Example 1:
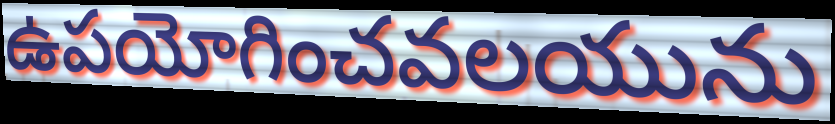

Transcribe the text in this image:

ఉపయోగించవలయును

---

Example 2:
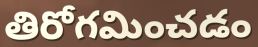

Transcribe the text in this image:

తిరోగమించడం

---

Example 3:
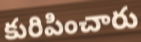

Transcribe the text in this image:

కురిపించారు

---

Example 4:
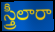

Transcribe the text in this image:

స్త్రీలారా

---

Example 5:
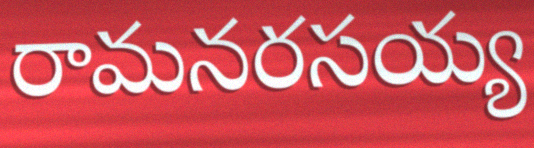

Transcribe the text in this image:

రామనరసయ్య